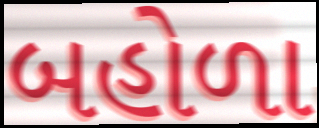
બહોળા